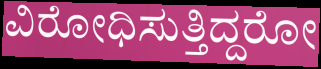
ವಿರೋಧಿಸುತ್ತಿದ್ದರೋ